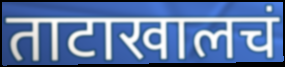
ताटाखालचं